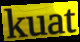
kuat